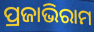
ପ୍ରଜାଭିରାମ